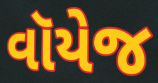
વૉયેજ